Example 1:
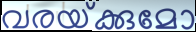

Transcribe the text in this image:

വരയ്‌ക്കുമോ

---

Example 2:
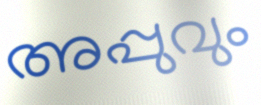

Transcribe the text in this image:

അപ്പുവും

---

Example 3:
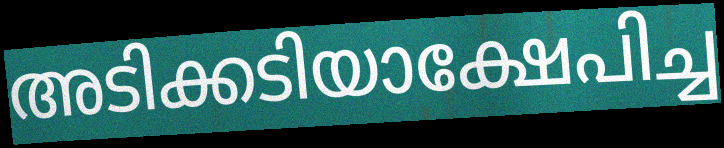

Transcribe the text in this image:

അടിക്കടിയാക്ഷേപിച്ച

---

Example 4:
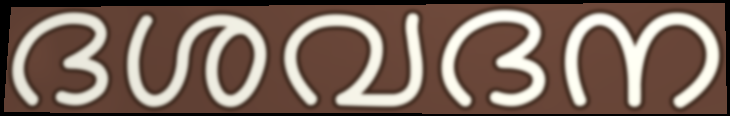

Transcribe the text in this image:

ദശവദന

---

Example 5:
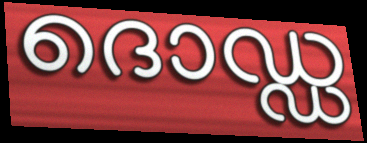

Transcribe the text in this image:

ദൊഡ്ഡ